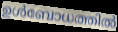
ഉൾബോധത്തിൽ